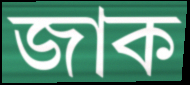
জাক